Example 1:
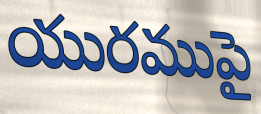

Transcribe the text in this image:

యురముపై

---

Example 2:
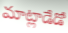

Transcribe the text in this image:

మాట్లాడేడో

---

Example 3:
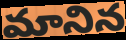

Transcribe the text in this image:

మానిన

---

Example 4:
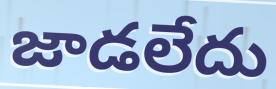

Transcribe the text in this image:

జాడలేదు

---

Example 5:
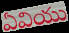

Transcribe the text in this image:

ఏవియు